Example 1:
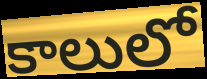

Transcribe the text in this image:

కాలులో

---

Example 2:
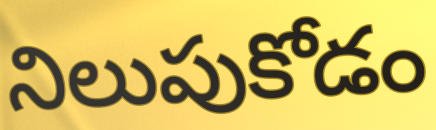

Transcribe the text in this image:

నిలుపుకోడం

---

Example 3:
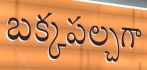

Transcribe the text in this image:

బక్కపల్చగా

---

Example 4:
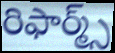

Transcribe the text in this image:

రిఫార్మ్స్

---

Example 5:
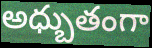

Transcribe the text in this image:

అధ్బుతంగా